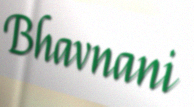
Bhavnani